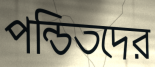
পন্ডিতদের